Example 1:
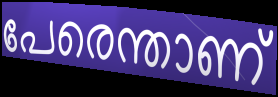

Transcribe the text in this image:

പേരെന്താണ്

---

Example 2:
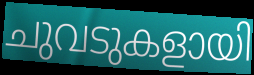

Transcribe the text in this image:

ചുവടുകളായി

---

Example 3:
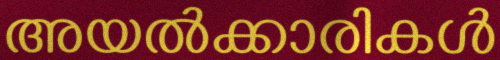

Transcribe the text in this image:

അയൽക്കാരികൾ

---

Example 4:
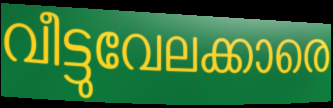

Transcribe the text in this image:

വീട്ടുവേലക്കാരെ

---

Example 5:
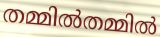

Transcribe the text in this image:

തമ്മിൽതമ്മിൽ